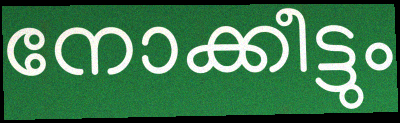
നോക്കീട്ടും